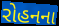
રોહનના